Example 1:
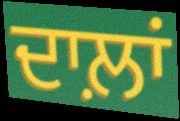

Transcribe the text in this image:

ਦਾਲ਼ਾਂ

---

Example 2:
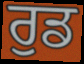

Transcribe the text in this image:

ਰੁਡ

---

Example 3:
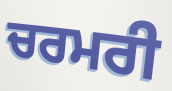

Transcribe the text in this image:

ਚਰਮਰੀ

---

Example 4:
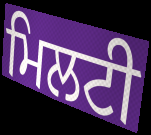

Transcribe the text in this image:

ਮਿਲਟੀ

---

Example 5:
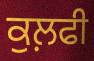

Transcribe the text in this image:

ਕੁਲ਼ਫੀ